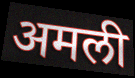
अमली